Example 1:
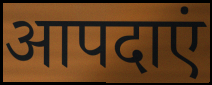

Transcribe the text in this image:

आपदाएं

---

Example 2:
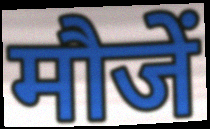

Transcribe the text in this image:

मौजें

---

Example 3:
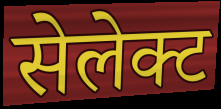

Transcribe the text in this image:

सेलेक्ट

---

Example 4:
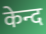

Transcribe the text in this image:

केन्द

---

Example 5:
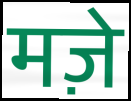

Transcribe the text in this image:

मज़े